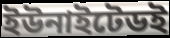
ইউনাইটেডই